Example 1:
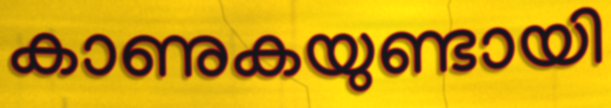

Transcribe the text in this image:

കാണുകയുണ്ടായി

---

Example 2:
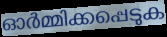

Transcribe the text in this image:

ഓർമ്മിക്കപ്പെടുക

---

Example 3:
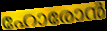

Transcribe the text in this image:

ഹോരോൻ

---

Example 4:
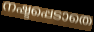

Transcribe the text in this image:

നഷ്ടപ്പെടാതെ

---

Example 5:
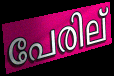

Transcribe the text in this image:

പേരില്